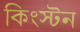
কিংস্টন